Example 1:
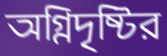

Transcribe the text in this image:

অগ্নিদৃষ্টির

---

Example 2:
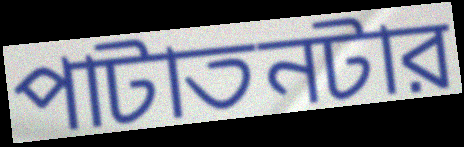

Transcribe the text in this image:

পাটাতনটার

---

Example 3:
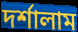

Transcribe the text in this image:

দর্শালাম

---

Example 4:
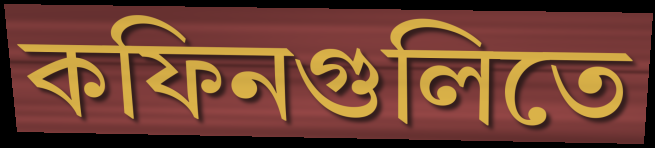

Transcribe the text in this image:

কফিনগুলিতে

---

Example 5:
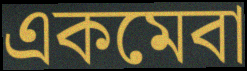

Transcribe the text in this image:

একমেবা